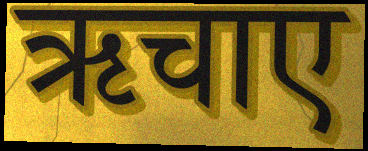
ऋचाए